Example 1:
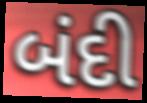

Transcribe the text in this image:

બંદી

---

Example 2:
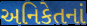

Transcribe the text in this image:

અનિકેતનાં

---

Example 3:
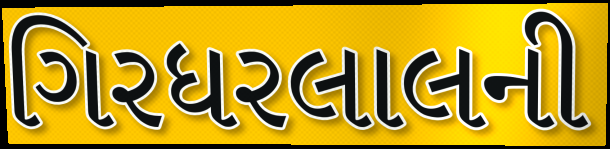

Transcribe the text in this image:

ગિરધરલાલની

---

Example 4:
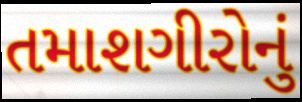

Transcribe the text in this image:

તમાશગીરોનું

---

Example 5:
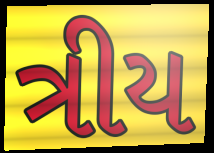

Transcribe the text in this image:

ત્રીય